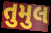
તુમુલ